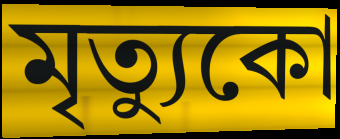
মৃত্যুকো